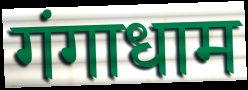
गंगाधाम